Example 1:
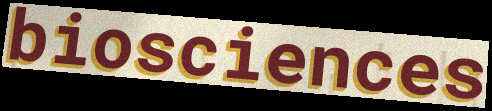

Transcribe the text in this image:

biosciences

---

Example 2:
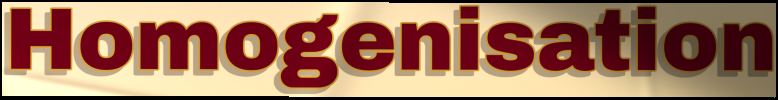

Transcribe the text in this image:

Homogenisation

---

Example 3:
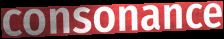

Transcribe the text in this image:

consonance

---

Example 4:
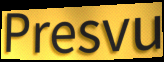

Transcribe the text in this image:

Presvu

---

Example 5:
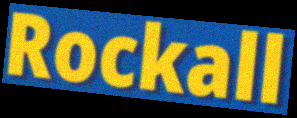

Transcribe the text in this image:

Rockall